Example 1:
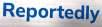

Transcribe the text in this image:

Reportedly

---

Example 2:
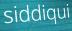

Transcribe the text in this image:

siddiqui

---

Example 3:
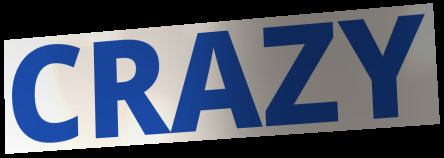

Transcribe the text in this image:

CRAZY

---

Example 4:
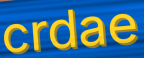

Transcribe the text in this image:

crdae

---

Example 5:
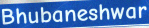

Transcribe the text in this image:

Bhubaneshwar